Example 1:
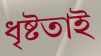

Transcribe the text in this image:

ধৃষ্টতাই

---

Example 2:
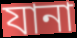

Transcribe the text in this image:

যানা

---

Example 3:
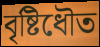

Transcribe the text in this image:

বৃষ্টিধৌত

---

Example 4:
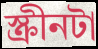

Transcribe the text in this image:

স্ক্রীনটা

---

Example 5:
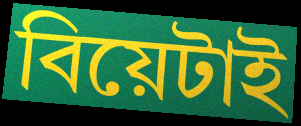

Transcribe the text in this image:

বিয়েটাই